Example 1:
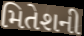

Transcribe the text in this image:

મિતેશની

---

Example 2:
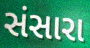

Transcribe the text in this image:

સંસારા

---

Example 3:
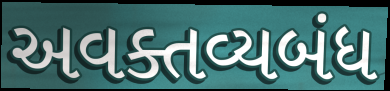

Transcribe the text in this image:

અવક્તવ્યબંધ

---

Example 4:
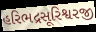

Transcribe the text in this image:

હરિભદ્રસૂરિશ્વરજી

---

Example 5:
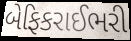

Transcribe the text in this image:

બેફિકરાઈભરી